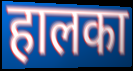
हालका